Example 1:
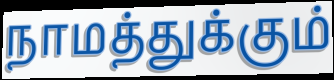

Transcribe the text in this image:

நாமத்துக்கும்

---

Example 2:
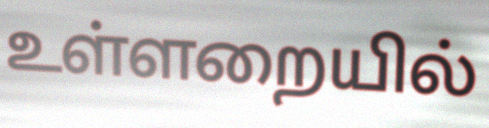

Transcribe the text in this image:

உள்ளறையில்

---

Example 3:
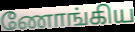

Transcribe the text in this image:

ணோங்கிய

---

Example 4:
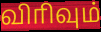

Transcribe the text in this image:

விரிவும்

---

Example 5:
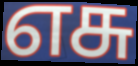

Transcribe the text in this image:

எசு